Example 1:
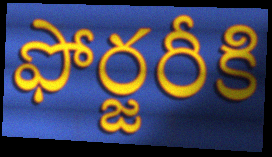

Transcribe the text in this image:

ఫోర్జరీకి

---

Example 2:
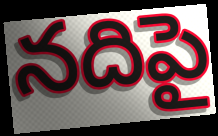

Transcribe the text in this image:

నదిపై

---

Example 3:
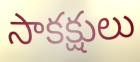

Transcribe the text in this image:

సాకక్షులు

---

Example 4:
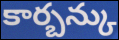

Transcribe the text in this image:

కార్బన్కు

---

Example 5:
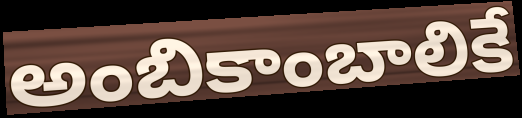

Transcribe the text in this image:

అంబికాంబాలికే